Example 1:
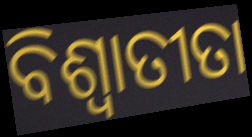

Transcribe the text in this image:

ବିଶ୍ଵାତୀତା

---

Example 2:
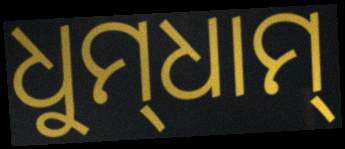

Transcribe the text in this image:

ଧୁମ୍‌ଧାମ୍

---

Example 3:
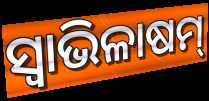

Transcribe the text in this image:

ସ୍ବାଭିଳାଷମ୍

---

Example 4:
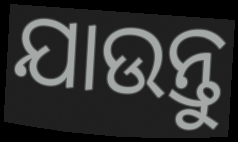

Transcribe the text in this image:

ଯାଉନ୍ତୁ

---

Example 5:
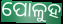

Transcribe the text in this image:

ପୋଳୁହ